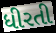
ધીરતી